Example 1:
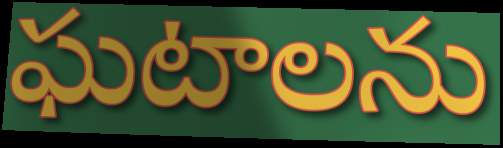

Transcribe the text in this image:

ఘటాలను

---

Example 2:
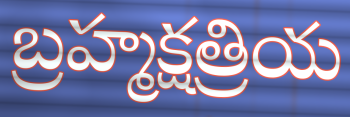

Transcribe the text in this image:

బ్రహ్మక్షత్రియ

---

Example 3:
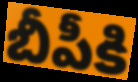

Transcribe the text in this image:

బీపీకి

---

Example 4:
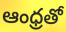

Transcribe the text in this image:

ఆంధ్రతో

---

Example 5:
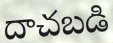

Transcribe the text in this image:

దాచబడి